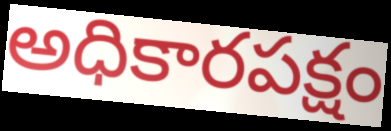
అధికారపక్షం